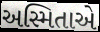
અસ્મિતાએ